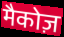
मैकोज़